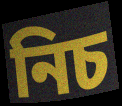
নিচ